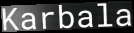
Karbala